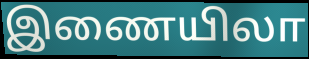
இணையிலா